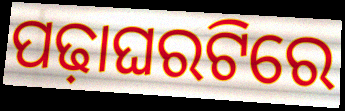
ପଢ଼ାଘରଟିରେ